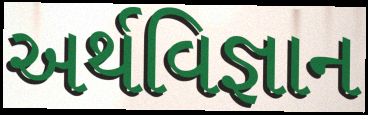
અર્થવિજ્ઞાન